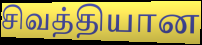
சிவத்தியான